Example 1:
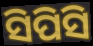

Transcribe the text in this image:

ସିପିସି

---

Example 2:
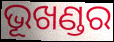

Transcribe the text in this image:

ଭୂଖଣ୍ଡର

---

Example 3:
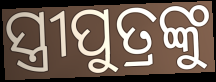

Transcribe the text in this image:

ସ୍ତ୍ରୀପୁତ୍ରଙ୍କୁ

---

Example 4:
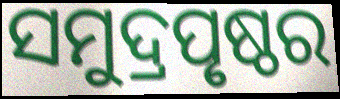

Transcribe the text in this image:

ସମୁଦ୍ରପୃଷ୍ଠର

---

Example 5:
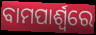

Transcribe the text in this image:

ବାମପାର୍ଶ୍ଵରେ